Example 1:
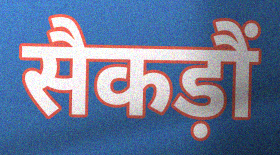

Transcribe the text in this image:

सैकड़ौं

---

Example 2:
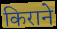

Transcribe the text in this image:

किराने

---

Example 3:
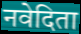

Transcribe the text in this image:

नवेदिता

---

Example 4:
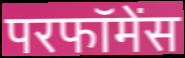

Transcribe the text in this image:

परफॉमेंस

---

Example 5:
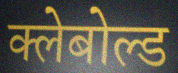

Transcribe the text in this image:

क्लेबोल्ड